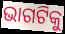
ଭାଗଟିକୁ